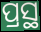
ପ୍ରସ୍ଥ